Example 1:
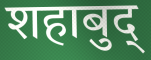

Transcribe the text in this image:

शहाबुद्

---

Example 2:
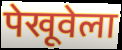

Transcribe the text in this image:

पेखूवेला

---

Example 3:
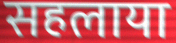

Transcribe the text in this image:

सहलाया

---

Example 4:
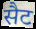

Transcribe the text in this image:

सैट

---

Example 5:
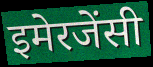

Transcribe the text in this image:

इमेरजेंसी